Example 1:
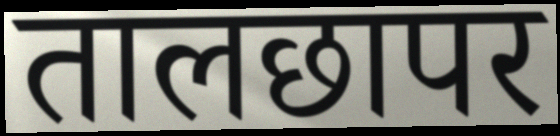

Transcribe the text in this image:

तालछापर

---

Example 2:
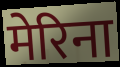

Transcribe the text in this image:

मेरिना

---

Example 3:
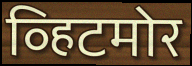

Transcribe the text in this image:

व्हिटमोर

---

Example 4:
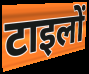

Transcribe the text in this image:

टाइलों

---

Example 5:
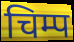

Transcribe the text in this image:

चिम्प